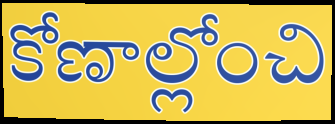
కోణాల్లోంచి